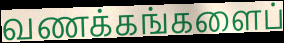
வணக்கங்களைப்